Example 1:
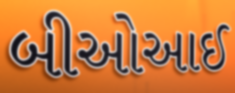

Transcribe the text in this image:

બીઓઆઈ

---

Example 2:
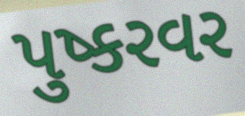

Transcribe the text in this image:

પુષ્કરવર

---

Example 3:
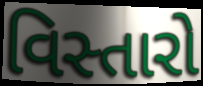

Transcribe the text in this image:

વિસ્તારો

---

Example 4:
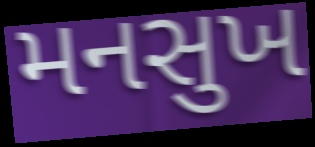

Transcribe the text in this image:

મનસુખ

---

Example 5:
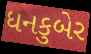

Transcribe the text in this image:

ધનકુબેર